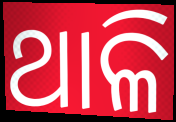
ଥାଳି